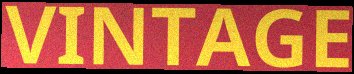
VINTAGE